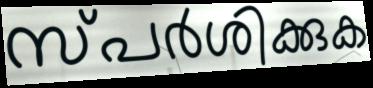
സ്പർശിക്കുക